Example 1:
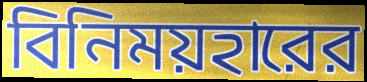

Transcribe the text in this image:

বিনিময়হারের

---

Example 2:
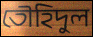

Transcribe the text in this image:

তৌহিদুল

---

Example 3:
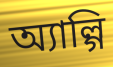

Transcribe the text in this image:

অ্যাল্গি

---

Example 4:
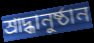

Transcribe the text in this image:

শ্রাদ্ধানুষ্ঠান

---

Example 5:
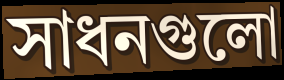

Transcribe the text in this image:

সাধনগুলো